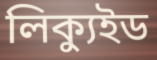
লিক্যুইড